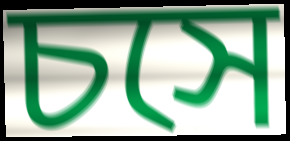
চসে